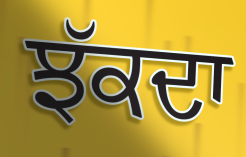
ਝੱਕਦਾ